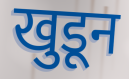
खुडून